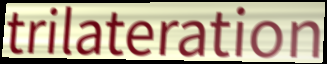
trilateration